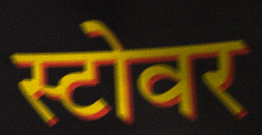
स्टोवर